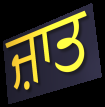
ਜ਼ਾਤ